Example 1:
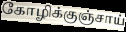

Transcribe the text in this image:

கோழிக்குஞ்சாய்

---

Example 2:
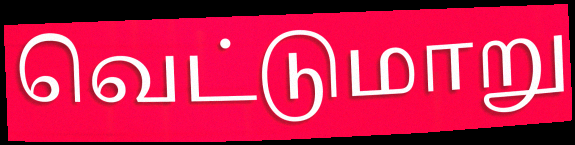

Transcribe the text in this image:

வெட்டுமாறு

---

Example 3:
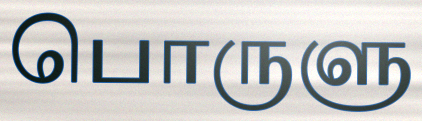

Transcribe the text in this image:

பொருளு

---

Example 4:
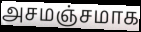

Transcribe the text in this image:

அசமஞ்சமாக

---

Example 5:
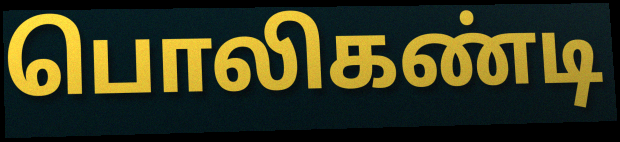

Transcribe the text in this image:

பொலிகண்டி